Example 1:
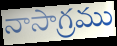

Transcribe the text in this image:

నాసాగ్రము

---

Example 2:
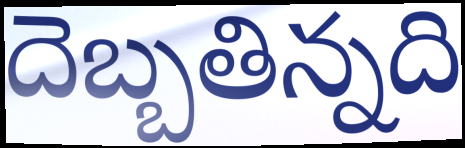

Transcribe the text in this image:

దెబ్బతిన్నది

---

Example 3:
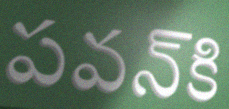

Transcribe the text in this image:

పవన్‌కి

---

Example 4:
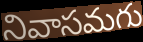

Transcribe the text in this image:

నివాసమగు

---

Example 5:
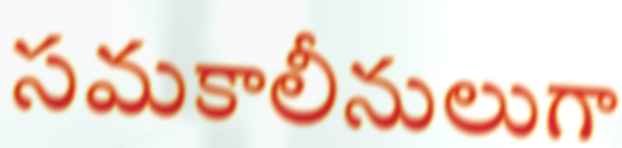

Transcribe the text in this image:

సమకాలీనులుగా